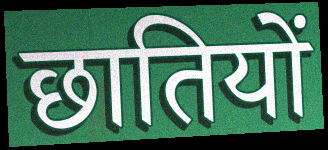
छातियों